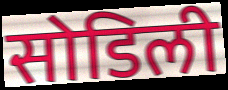
सोडिली